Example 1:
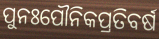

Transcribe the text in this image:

ପୁନଃପୌନିକପ୍ରତିବର୍ଷ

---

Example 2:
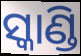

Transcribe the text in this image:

ସ୍କାଣ୍ଡି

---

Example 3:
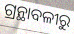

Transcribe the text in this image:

ଗ୍ରନ୍ଥାବଳୀରୁ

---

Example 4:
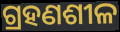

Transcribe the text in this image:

ଗ୍ରହଣଶୀଳ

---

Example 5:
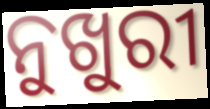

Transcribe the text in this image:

ନୁଖୁରୀ